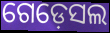
ଗେଡ଼େସଲ